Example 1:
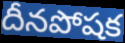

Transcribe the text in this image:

దీనపోషక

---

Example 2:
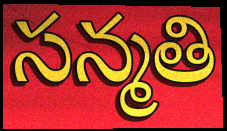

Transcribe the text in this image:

సన్మతి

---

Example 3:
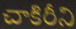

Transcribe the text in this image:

చాకిరీని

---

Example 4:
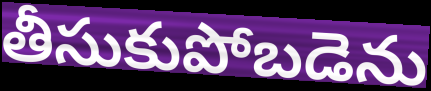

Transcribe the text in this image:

తీసుకుపోబడెను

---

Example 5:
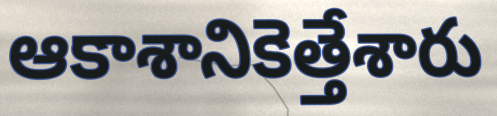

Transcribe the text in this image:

ఆకాశానికెత్తేశారు